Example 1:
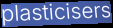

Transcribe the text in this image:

plasticisers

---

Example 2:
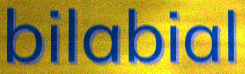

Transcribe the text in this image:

bilabial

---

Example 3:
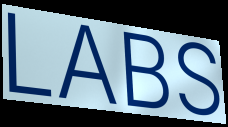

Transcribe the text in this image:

LABS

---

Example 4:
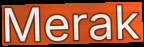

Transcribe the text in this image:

Merak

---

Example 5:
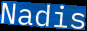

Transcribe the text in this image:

Nadis